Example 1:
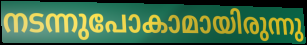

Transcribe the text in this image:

നടന്നുപോകാമായിരുന്നു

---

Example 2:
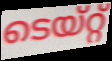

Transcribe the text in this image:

ടെയ്റ്റ്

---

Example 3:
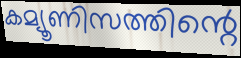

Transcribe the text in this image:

കമ്യൂണിസത്തിന്റെ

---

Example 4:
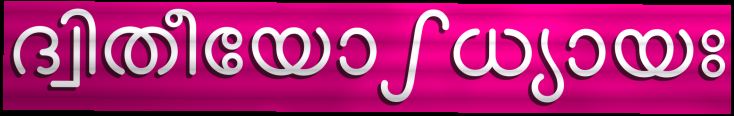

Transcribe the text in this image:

ദ്വിതീയോഽധ്യായഃ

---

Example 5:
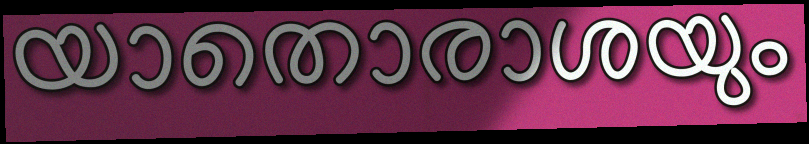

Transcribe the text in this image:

യാതൊരാശയും